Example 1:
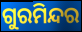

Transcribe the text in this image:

ଗୁରମିନ୍ଦର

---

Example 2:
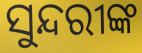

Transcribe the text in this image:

ସୁନ୍ଦରୀଙ୍କ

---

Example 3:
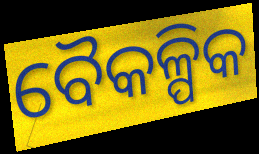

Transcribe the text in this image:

ବୈକଳ୍ପିକ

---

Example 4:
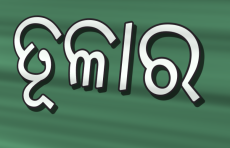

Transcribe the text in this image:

ତୂଳାର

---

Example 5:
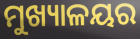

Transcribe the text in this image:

ମୁଖ୍ୟାଳୟର